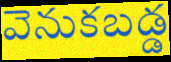
వెనుకబడ్డ